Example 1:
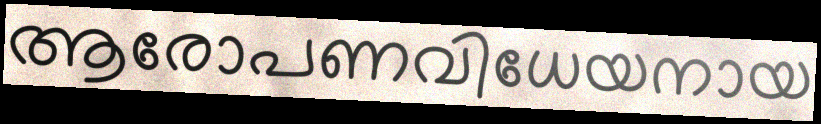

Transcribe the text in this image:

ആരോപണവിധേയനായ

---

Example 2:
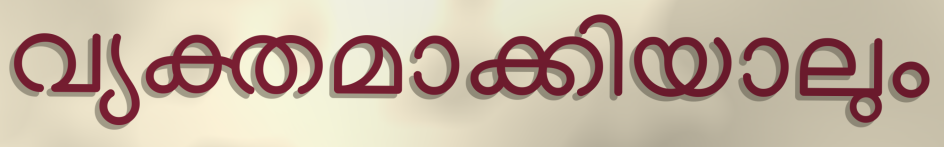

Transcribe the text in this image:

വ്യക്തമാക്കിയാലും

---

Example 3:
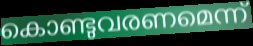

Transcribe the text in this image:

കൊണ്ടുവരണമെന്ന്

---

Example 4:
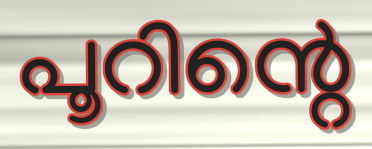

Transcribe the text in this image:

പൂറിന്റെ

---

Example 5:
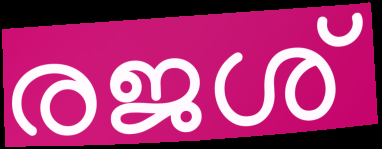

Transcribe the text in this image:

രജശ്